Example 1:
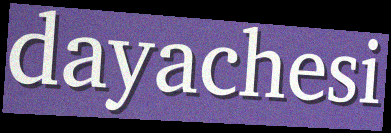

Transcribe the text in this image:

dayachesi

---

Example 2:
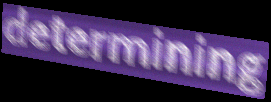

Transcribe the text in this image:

determining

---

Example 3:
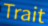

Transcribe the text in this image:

Trait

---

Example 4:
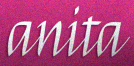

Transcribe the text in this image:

anita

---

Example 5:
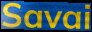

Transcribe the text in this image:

Savai